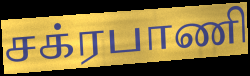
சக்ரபாணி